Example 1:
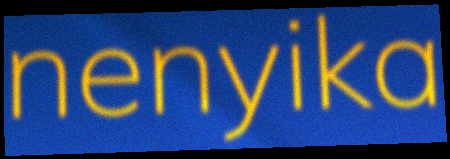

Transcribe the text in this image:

nenyika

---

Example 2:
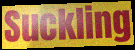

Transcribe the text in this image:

Suckling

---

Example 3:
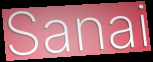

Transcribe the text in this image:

Sanai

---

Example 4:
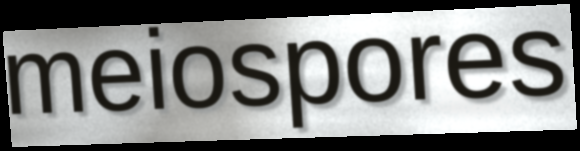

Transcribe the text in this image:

meiospores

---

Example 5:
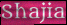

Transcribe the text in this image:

Shajia